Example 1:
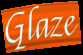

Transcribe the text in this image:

Glaze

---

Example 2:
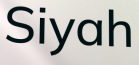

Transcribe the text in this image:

Siyah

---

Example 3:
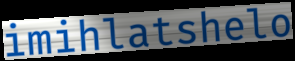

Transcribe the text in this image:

imihlatshelo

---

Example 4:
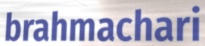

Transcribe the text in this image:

brahmachari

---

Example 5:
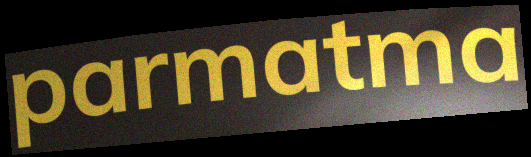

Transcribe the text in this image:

parmatma